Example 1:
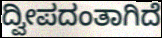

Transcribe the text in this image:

ದ್ವೀಪದಂತಾಗಿದೆ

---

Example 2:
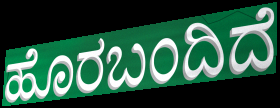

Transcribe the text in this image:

ಹೊರಬಂದಿದೆ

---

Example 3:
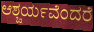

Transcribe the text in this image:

ಆಶ್ಚರ್ಯವೆಂದರೆ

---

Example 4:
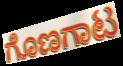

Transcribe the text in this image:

ಗೊಣಗಾಟ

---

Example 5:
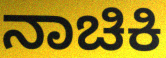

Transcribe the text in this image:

ನಾಚಿಕಿ